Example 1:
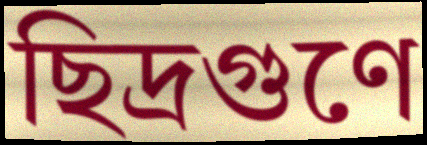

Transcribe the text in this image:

ছিদ্রগুণে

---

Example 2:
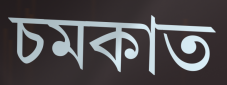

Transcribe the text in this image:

চমকাত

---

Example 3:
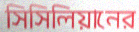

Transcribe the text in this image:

সিসিলিয়ানের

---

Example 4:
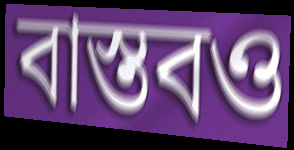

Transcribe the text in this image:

বাস্তবও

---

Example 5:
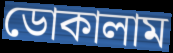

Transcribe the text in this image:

ডোকালাম